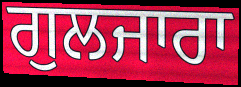
ਗੁਲਜਾਰਾ